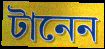
টানেন